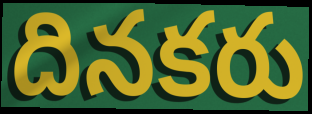
దినకరు